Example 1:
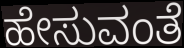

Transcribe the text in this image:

ಹೇಸುವಂತೆ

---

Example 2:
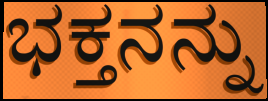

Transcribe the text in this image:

ಭಕ್ತನನ್ನು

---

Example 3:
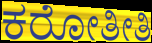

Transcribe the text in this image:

ಕರೋತೀತಿ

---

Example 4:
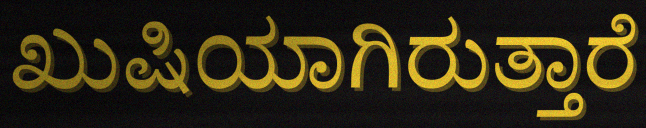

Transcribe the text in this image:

ಖುಷಿಯಾಗಿರುತ್ತಾರೆ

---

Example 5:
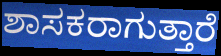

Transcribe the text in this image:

ಶಾಸಕರಾಗುತ್ತಾರೆ